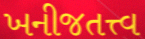
ખનીજતત્ત્વ